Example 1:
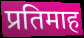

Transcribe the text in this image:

प्रतिमाह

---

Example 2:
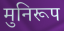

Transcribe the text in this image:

मुनिरूप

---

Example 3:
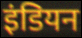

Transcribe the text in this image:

इंडियन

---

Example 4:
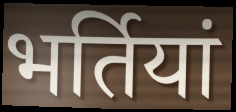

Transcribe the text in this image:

भर्तियां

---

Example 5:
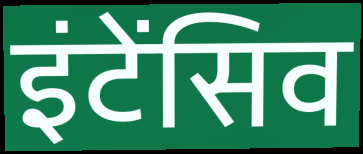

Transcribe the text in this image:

इंटेंसिव